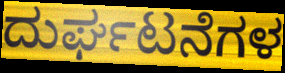
ದುರ್ಘಟನೆಗಳ